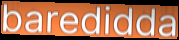
baredidda